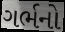
ગર્ભનો